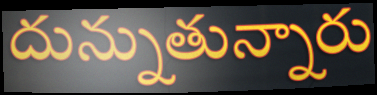
దున్నుతున్నారు